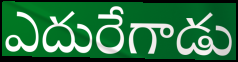
ఎదురేగాడు